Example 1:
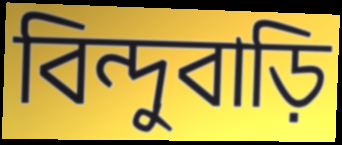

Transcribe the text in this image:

বিন্দুবাড়ি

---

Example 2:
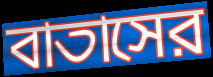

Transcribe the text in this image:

বাতাসের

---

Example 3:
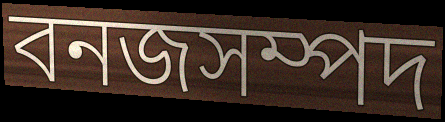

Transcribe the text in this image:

বনজসম্পদ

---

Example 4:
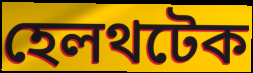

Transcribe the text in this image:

হেলথটেক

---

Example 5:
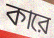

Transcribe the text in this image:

কারে